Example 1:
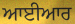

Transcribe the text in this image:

ਆਈਆਰ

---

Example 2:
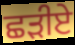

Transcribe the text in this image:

ਛੜੀਏ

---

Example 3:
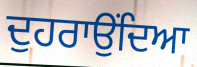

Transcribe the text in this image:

ਦੁਹਰਾਉਂਦਿਆ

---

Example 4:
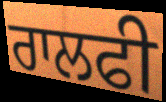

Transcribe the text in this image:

ਰਾਲਫੀ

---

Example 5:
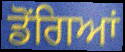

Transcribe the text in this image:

ਡੋਂਗਿਆਂ